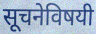
सूचनेविषयी